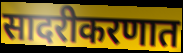
सादरीकरणात